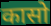
कासो